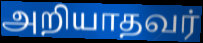
அறியாதவர்